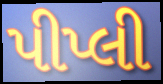
પીપ્લી